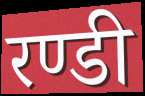
रण्डी